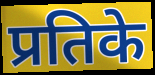
प्रतिके